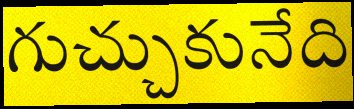
గుచ్చుకునేది